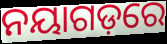
ନୟାଗଡ଼ରେ